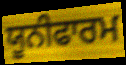
ਯੂਨੀਫਾਰਮ